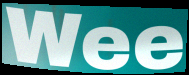
Wee